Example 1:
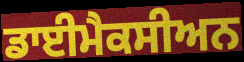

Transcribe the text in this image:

ਡਾਈਮੈਕਸੀਅਨ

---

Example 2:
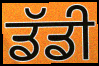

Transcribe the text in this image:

ਡੱਡੀ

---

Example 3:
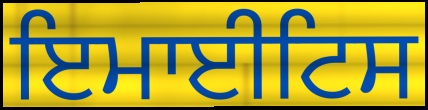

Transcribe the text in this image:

ਇਮਾਈਟਿਸ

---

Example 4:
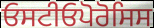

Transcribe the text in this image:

ਓਸਟੀਓਪੋਰੋਸਿਸ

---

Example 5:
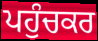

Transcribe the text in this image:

ਪਹੁੰਚਕਰ